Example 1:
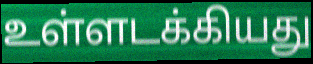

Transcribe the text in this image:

உள்ளடக்கியது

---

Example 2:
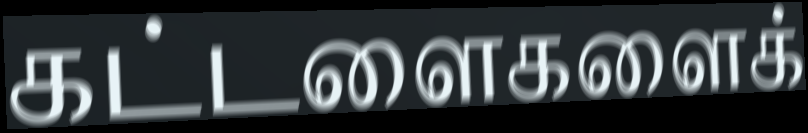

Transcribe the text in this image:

கட்டளைகளைக்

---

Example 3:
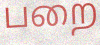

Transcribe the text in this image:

பறை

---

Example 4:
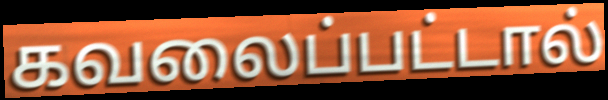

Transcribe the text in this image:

கவலைப்பட்டால்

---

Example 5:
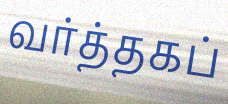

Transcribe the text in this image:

வர்த்தகப்